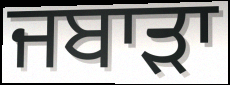
ਜਬਾੜਾ